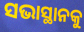
ସଭାସ୍ଥାନକୁ